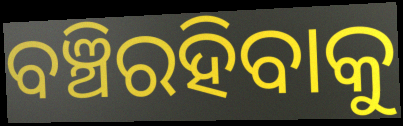
ବଞ୍ଚିରହିବାକୁ